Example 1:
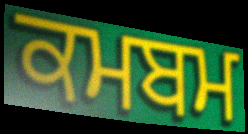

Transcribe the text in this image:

ਕਮਬਮ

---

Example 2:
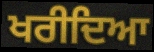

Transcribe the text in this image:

ਖਰੀਦਿਆ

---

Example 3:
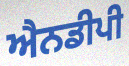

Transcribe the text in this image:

ਐਨਡੀਪੀ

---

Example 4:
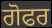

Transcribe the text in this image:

ਗੋਫਰ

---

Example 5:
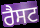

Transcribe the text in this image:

ਰੈਸਟ